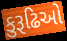
કુરૂઢિઓ